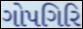
ગોપગિરિ